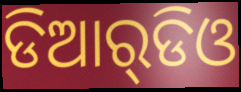
ଡିଆର୍‌ଡିଓ